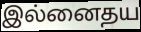
இல்னைதய